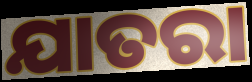
ଯାତରା